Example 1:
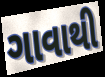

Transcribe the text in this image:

ગાવાથી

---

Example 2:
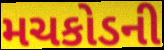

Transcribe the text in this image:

મચકોડની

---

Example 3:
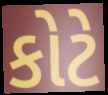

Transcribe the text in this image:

કોટે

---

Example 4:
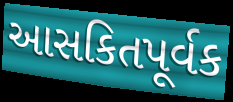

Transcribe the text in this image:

આસકિતપૂર્વક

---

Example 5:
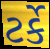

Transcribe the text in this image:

ટર્કે